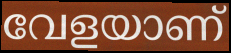
വേളയാണ്